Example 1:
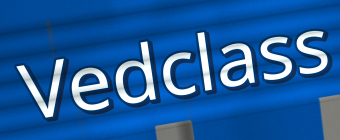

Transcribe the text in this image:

Vedclass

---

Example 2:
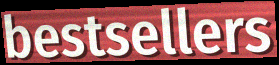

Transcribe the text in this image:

bestsellers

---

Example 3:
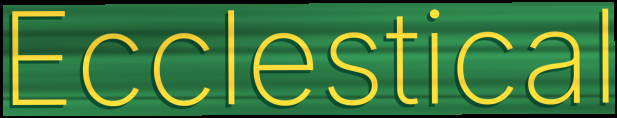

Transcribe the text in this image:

Ecclestical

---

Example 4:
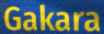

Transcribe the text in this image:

Gakara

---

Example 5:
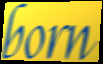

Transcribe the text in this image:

born